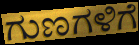
ಗುಣಗಳಿಗೆ